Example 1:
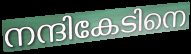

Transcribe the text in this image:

നന്ദികേടിനെ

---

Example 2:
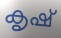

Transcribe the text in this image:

കൃഷ്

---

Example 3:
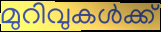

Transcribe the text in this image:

മുറിവുകൾക്ക്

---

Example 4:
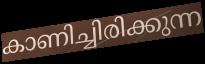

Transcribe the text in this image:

കാണിച്ചിരിക്കുന്ന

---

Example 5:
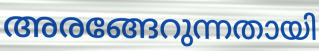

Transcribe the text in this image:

അരങ്ങേറുന്നതായി